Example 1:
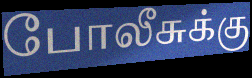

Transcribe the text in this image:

போலீசுக்கு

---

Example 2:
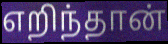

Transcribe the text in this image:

எறிந்தான்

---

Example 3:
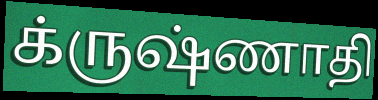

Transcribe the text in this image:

க்ருஷ்ணாதி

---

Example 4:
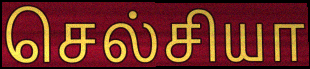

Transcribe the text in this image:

செல்சியா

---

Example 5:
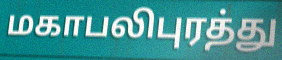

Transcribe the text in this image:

மகாபலிபுரத்து